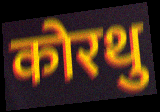
कोरथु